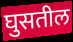
घुसतील